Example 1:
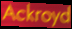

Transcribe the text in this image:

Ackroyd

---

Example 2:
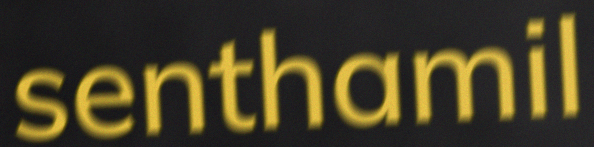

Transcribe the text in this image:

senthamil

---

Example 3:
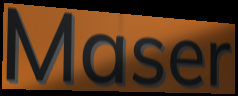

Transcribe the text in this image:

Maser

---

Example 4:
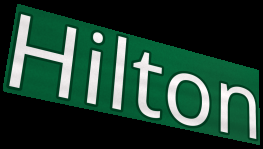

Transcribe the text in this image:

Hilton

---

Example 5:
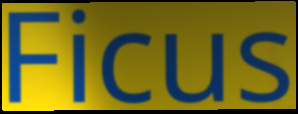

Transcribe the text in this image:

Ficus